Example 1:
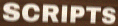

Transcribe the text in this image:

SCRIPTS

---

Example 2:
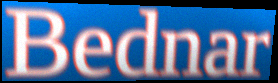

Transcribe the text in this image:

Bednar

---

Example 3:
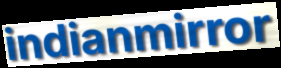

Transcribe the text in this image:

indianmirror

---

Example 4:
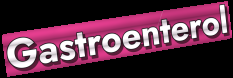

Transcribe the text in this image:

Gastroenterol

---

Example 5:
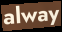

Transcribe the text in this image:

alway